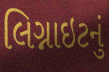
લિગ્નાઇટનું